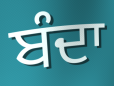
ਬੰਦਾ